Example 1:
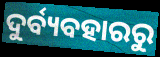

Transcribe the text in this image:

ଦୁର୍ବ୍ୟବହାରରୁ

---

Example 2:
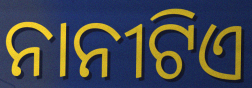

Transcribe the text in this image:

ନାନୀଟିଏ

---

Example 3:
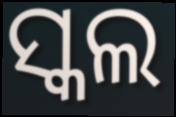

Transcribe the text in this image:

ସ୍କଲ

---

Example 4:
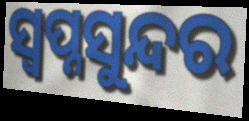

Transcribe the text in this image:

ସ୍ୱପ୍ନସୁନ୍ଦର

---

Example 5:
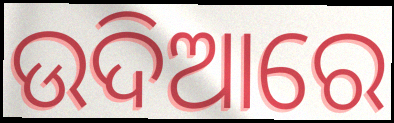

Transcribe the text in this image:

ଉଦିଆରେ